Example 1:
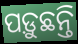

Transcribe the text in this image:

ପଡ଼ୁଛନ୍ତି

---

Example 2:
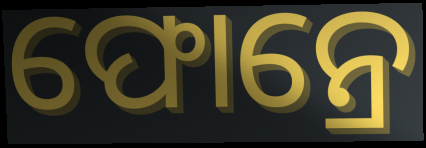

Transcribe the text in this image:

ଫୋନ୍ରେ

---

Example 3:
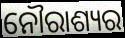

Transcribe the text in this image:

ନୌରାଶ୍ୟର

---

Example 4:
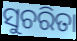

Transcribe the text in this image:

ସୁଚରିତା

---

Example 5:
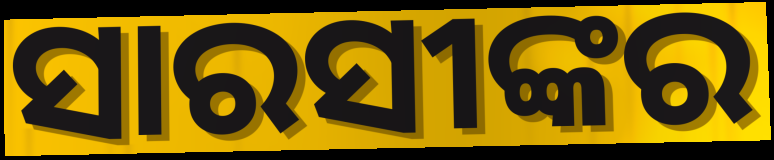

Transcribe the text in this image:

ସାରସୀଙ୍କର